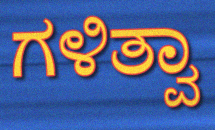
ಗಳಿತ್ವಾ